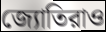
জ্যোতিরাও